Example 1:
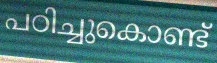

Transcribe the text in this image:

പഠിച്ചുകൊണ്ട്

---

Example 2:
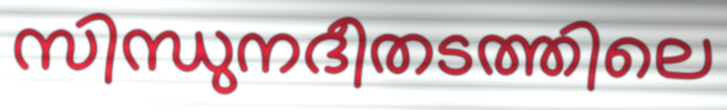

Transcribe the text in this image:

സിന്ധുനദീതടത്തിലെ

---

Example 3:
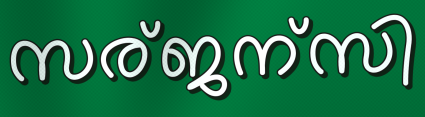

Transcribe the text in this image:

സര്ജന്സി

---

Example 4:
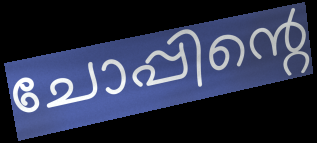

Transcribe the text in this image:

ചോപ്പിന്റെ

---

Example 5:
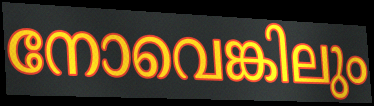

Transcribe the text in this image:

നോവെങ്കിലും